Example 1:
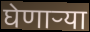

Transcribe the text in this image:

घेणाऱ्या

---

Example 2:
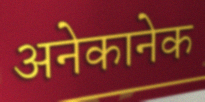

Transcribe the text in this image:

अनेकानेक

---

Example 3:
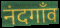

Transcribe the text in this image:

नंदगाँव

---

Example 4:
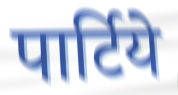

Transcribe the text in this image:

पार्टिये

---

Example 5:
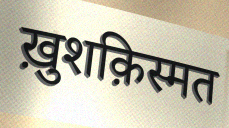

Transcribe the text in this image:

ख़ुशक़िस्मत